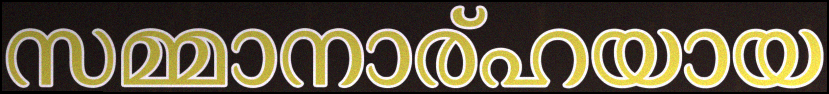
സമ്മാനാര്ഹയായ